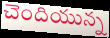
చెందియున్న